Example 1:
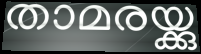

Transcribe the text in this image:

താമരയ്ക്കു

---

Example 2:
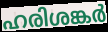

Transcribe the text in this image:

ഹരിശങ്കർ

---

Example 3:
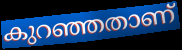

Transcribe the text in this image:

കുറഞ്ഞതാണ്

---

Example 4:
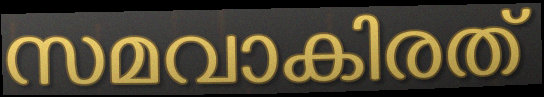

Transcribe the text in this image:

സമവാകിരത്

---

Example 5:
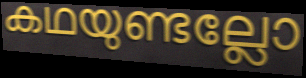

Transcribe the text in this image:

കഥയുണ്ടല്ലോ